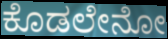
ಕೊಡಲೇನೋ